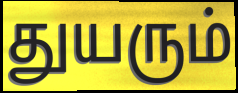
துயரும்